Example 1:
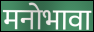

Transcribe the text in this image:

मनोभावा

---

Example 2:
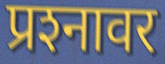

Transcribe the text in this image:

प्रश्‍नावर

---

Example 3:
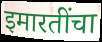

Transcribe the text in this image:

इमारतींचा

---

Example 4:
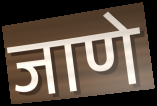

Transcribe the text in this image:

जाणे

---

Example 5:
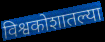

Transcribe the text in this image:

विश्वकोशातल्या